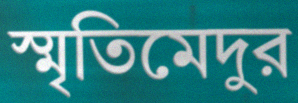
স্মৃতিমেদুর